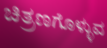
ಚಿತ್ರಣಗೊಳ್ಳುವ